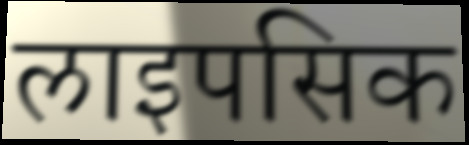
लाइपसिक